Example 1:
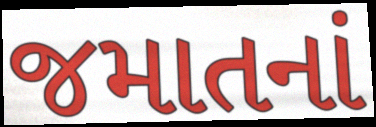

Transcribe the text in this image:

જમાતનાં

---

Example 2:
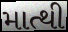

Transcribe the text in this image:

માત્થી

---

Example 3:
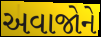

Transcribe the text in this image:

અવાજોને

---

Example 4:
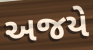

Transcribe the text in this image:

અજયે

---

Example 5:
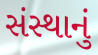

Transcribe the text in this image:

સંસ્થાનું